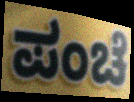
ಪಂಚೆ